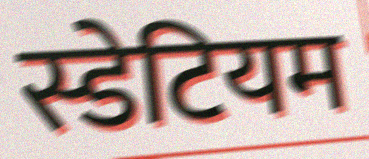
स्डेटियम